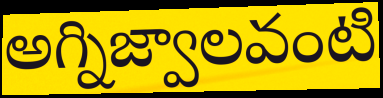
అగ్నిజ్వాలవంటి